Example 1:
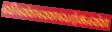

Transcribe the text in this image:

விண்ணவர்கண்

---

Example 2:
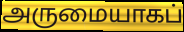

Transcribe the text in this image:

அருமையாகப்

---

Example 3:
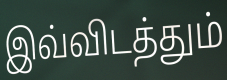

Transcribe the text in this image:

இவ்விடத்தும்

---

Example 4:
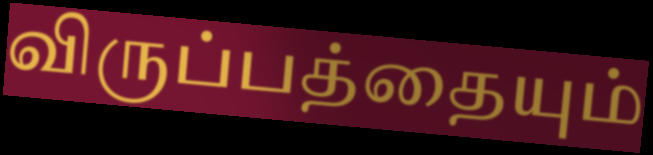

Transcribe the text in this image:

விருப்பத்தையும்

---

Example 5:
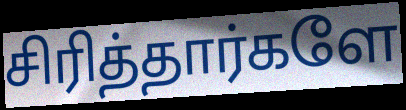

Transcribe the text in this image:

சிரித்தார்களே